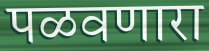
पळवणारा